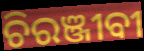
ଚିରଞ୍ଜୀବୀ